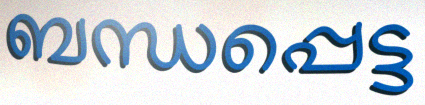
ബന്ധപ്പെട്ട